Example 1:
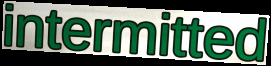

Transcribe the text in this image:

intermitted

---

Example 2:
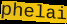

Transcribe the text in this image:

phelai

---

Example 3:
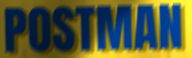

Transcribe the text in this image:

POSTMAN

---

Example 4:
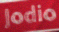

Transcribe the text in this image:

Jodio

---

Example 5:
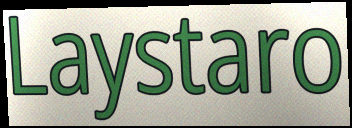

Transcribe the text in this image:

Laystaro